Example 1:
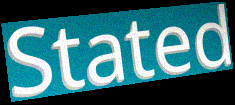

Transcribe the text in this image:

Stated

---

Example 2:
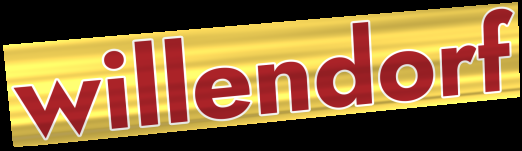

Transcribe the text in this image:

willendorf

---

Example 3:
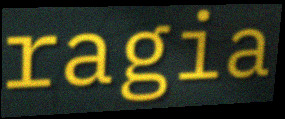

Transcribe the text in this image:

ragia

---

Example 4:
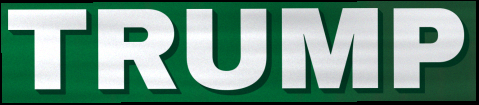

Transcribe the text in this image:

TRUMP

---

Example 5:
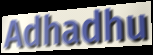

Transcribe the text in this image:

Adhadhu